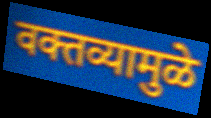
वक्तव्यामुळे